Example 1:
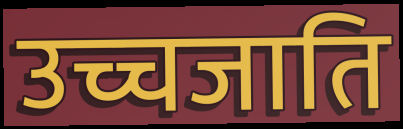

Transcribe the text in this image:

उच्चजाति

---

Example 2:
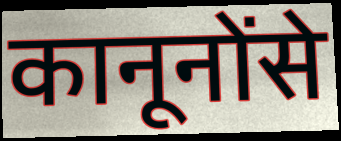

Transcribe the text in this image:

कानूनोंसे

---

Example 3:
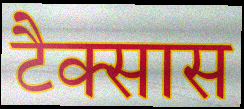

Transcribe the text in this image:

टैक्सास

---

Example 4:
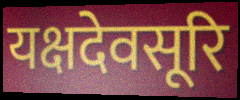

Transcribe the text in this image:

यक्षदेवसूरि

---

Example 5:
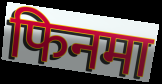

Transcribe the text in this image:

फिनमा